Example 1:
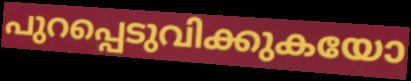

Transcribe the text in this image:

പുറപ്പെടുവിക്കുകയോ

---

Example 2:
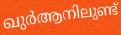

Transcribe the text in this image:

ഖുർആനിലുണ്ട്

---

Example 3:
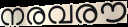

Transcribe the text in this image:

നരവരൗ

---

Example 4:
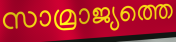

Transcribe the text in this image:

സാമ്രാജ്യത്തെ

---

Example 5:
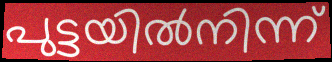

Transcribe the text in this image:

പുട്ടയിൽനിന്ന്